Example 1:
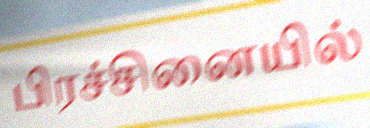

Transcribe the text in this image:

பிரச்சினையில்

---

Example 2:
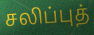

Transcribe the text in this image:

சலிப்புத்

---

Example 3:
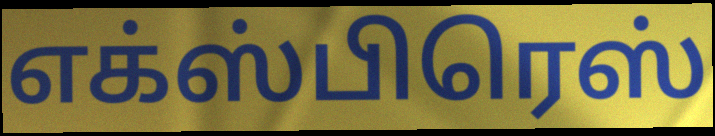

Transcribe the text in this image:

எக்ஸ்பிரெஸ்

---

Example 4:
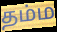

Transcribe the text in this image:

தம்ம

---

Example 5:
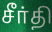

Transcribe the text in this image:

சீர்தி